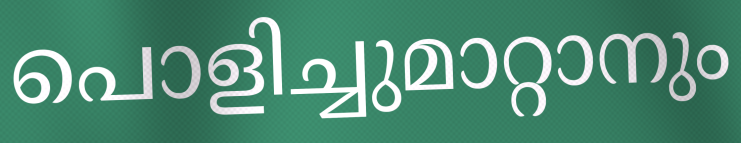
പൊളിച്ചുമാറ്റാനും